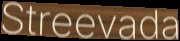
Streevada